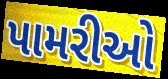
પામરીઓ